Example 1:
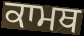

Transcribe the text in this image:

ਕਾਮਥ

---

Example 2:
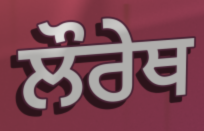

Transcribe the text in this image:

ਲੌਰੇਥ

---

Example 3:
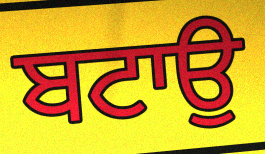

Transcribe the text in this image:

ਬਟਾਉ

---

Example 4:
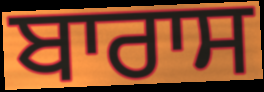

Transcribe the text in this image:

ਬਾਰਾਸ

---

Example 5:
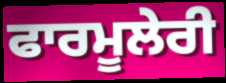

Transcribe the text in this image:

ਫਾਰਮੂਲੇਰੀ